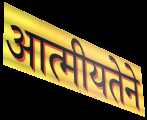
आत्मीयतेने